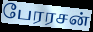
பேரரசன்